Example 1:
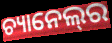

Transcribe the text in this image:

ଚ୍ୟାନେଲ୍‌ର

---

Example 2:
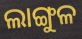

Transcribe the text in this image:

ଲାଙ୍ଗୁଳ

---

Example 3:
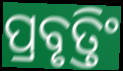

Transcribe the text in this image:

ପ୍ରବୃତ୍ତିଂ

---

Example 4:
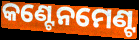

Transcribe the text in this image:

କଣ୍ଟେନମେଣ୍ଟ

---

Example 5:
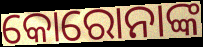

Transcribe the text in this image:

କୋରୋନାଙ୍କ